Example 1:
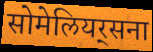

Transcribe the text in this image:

सोमेलियर्सना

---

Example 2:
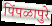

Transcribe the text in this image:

पिंपळापुरे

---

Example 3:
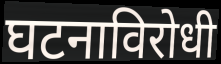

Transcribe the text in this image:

घटनाविरोधी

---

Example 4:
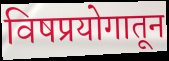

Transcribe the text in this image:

विषप्रयोगातून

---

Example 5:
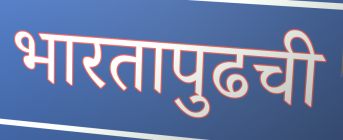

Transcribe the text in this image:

भारतापुढची